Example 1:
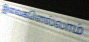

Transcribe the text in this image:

இவைகளெல்லாம்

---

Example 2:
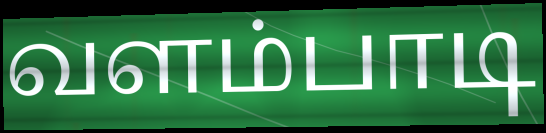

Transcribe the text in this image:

வளம்பாடி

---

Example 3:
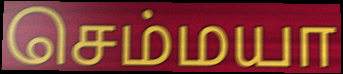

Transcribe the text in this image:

செம்மயா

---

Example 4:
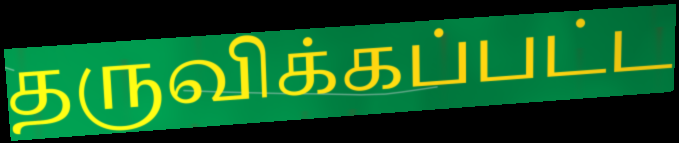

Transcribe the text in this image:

தருவிக்கப்பட்ட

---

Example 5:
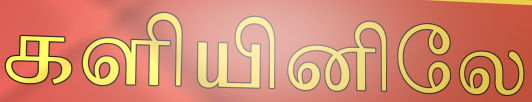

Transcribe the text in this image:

களியினிலே